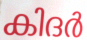
കിദർ